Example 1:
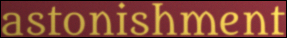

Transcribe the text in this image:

astonishment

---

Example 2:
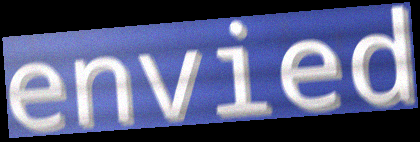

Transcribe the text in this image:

envied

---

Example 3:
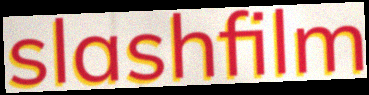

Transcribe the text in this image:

slashfilm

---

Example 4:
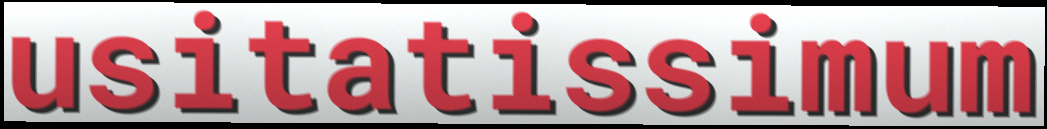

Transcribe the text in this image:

usitatissimum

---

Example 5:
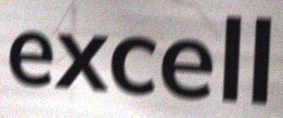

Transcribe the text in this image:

excell